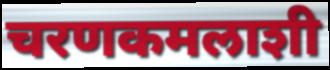
चरणकमलाशी